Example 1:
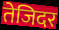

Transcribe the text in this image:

तेजिदर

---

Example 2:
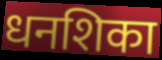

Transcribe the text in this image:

धनशिका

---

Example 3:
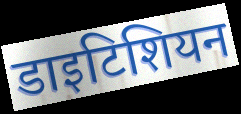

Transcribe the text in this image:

डाइटिशियन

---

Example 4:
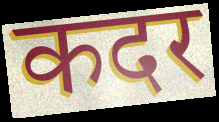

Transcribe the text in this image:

कदर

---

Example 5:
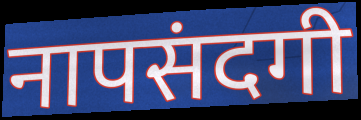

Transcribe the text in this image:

नापसंदगी